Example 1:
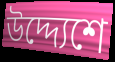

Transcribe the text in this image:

উদ্দ্যেশে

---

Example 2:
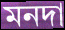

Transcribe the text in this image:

মনদা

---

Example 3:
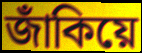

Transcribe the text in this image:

জাঁকিয়ে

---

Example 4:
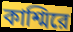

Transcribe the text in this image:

কাশ্মিরে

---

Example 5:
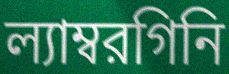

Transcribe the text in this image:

ল্যাম্বরগিনি